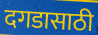
दगडासाठी